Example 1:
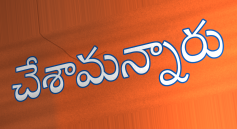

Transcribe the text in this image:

చేశామన్నారు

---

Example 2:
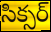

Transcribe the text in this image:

సిక్సర్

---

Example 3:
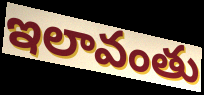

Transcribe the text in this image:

ఇలావంతు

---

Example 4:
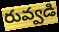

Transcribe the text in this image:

రువ్వడి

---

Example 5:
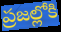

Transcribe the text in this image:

ప్రజల్లోకి